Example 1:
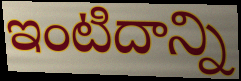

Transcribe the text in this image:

ఇంటిదాన్ని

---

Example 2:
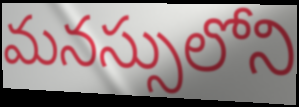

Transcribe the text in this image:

మనస్సులోని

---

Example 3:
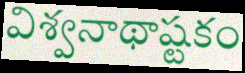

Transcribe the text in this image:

విశ్వనాథాష్టకం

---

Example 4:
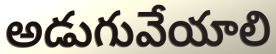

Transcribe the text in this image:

అడుగువేయాలి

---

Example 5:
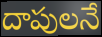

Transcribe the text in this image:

దాపులనే